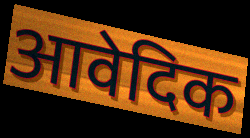
आवेदिक